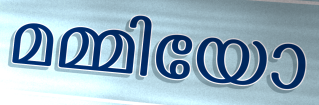
മമ്മിയോ